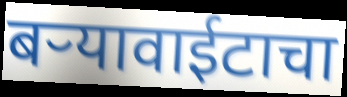
बऱ्यावाईटाचा